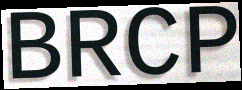
BRCP